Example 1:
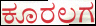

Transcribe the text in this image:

ಕೂರಲಗ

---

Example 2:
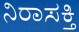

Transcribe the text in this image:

ನಿರಾಸಕ್ತಿ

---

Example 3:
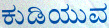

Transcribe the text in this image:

ಕುಡಿಯುವ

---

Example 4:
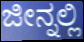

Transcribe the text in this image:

ಜೀನ್ನಲ್ಲಿ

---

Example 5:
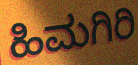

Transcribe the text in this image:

ಹಿಮಗಿರಿ